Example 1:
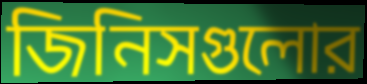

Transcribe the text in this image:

জিনিসগুলোর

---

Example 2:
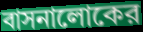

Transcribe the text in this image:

বাসনালোকের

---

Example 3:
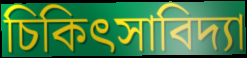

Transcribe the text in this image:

চিকিৎসাবিদ্যা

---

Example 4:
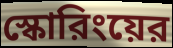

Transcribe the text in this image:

স্কোরিংয়ের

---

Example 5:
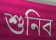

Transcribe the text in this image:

শুনিব